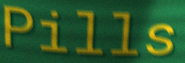
Pills